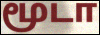
மூடா